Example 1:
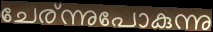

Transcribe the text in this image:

ചേര്ന്നുപോകുന്നു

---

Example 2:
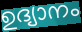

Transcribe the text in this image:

ഉദ്യാനം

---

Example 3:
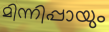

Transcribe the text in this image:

മിന്നിപ്പായും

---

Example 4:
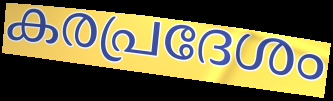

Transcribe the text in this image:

കരപ്രദേശം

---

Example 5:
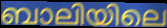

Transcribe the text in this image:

ബാലിയിലെ